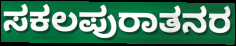
ಸಕಲಪುರಾತನರ